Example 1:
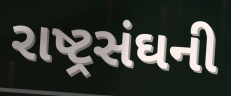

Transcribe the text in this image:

રાષ્ટ્રસંઘની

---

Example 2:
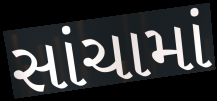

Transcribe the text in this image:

સાંચામાં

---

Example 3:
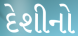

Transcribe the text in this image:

દેશીનો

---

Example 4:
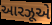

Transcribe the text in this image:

આરઝૂએ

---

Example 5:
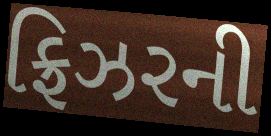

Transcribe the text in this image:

ફ્રિઝરની